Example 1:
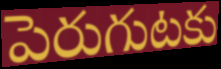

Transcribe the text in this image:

పెరుగుటకు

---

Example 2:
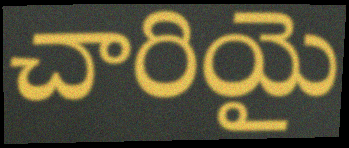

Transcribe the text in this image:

చారియై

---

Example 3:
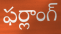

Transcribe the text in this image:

ఫర్లాంగ్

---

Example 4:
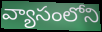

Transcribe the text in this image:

వ్యాసంలోని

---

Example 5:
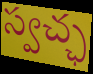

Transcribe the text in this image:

స్వచ్ఛ